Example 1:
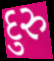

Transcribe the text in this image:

દુરુ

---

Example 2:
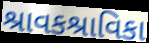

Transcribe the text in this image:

શ્રાવકશ્રાવિકા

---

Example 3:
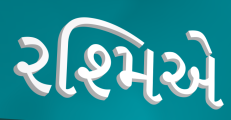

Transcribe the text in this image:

રશ્મિએ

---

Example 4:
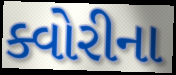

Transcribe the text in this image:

ક્વોરીના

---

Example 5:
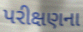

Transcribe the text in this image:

પરીક્ષણના